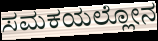
ಸಮಕಯಲ್ಲೋನ